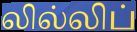
லில்லிப்